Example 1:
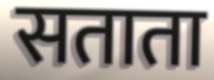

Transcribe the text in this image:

सताता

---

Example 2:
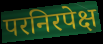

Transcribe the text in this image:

परनिरपेक्ष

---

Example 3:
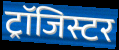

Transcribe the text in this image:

ट्रॉजिस्टर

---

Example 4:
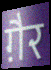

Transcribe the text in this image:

ग़ैर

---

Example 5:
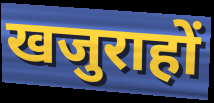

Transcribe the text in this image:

खजुराहों